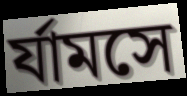
র্যামসে